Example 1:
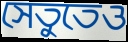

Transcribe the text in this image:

সেতুতেও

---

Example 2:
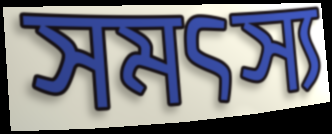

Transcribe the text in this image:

সমৎস্য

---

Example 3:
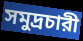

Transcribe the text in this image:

সমুদ্রচারী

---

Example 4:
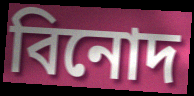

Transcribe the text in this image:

বিনোদ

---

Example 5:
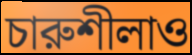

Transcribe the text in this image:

চারুশীলাও